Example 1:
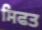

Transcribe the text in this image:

ਸਿਫਤ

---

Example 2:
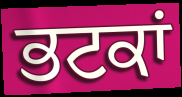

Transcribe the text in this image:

ਭਟਕਾਂ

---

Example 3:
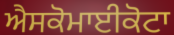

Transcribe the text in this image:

ਐਸਕੋਮਾਈਕੋਟਾ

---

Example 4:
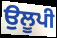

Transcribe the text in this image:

ਉਲੂਪੀ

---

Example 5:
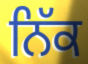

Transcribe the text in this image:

ਨਿੱਕ